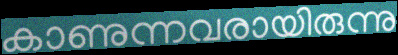
കാണുന്നവരായിരുന്നു